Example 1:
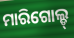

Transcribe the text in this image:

ମାରିଗୋଲ୍ଡ୍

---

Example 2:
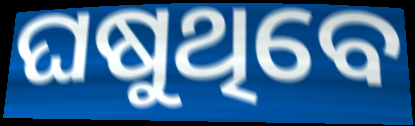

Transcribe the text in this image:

ଘଷୁଥିବେ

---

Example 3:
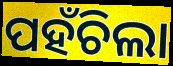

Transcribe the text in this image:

ପହଁଚିଲା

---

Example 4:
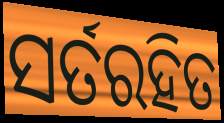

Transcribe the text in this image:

ସର୍ତରହିତ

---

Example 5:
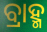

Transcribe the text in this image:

ବ୍ରାହ୍ମ